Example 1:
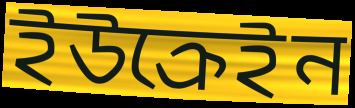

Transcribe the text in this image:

ইউক্ৰেইন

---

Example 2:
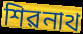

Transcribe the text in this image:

শিৱনাথ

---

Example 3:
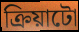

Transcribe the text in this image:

ক্ৰিয়াটো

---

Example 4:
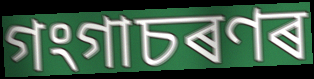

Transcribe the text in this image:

গংগাচৰণৰ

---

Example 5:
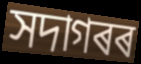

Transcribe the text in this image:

সদাগৰৰ